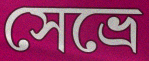
সেভ্রে